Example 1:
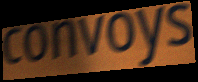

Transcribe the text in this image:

convoys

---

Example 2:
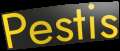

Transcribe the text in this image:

Pestis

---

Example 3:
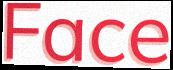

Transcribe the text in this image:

Face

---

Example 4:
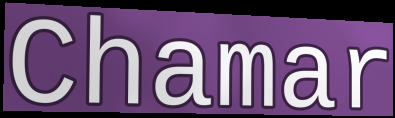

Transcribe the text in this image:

Chamar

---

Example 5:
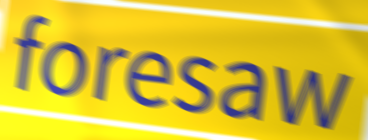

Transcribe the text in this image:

foresaw